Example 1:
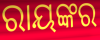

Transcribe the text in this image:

ରାୟଙ୍କର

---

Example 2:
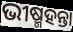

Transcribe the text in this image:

ଭୀଷ୍ମହନ୍ତା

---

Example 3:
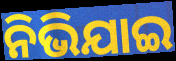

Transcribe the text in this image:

ନିଭିଯାଇ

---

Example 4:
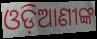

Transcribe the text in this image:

ଓଡ଼ିଆଣୀଙ୍କ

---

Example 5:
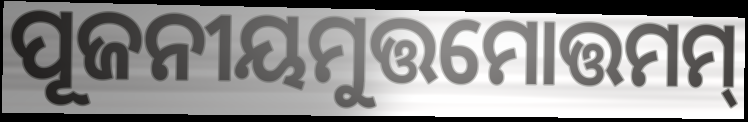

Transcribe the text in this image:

ପୂଜନୀୟମୁତ୍ତମୋତ୍ତମମ୍